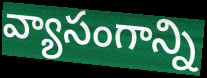
వ్యాసంగాన్ని